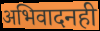
अभिवादनही